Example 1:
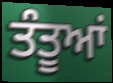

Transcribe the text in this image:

ਤੰਤੂਆਂ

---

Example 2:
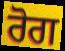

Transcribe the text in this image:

ਰੋਗ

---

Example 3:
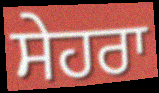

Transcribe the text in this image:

ਸੇਹਰਾ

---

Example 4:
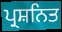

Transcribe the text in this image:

ਪ੍ਰਸ਼ਨਿਤ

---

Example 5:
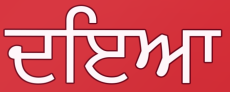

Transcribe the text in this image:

ਦਇਆ